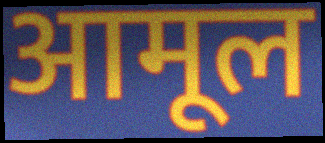
आमूल